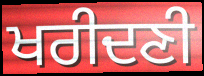
ਖਰੀਦਣੀ